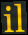
il